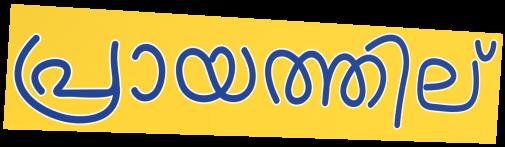
പ്രായത്തില്